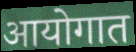
आयोगात